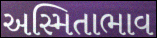
અસ્મિતાભાવ